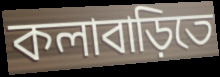
কলাবাড়িতে